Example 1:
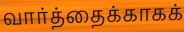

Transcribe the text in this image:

வார்த்தைக்காகக்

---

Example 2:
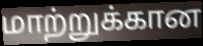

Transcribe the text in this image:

மாற்றுக்கான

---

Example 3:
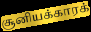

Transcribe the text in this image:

சூனியக்காரக்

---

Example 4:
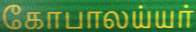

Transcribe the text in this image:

கோபாலய்யர்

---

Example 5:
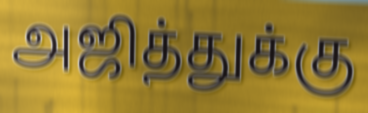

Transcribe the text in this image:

அஜித்துக்கு